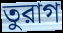
তুরাগ